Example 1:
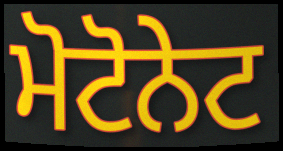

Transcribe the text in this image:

ਮੋਟੋਨੇਟ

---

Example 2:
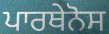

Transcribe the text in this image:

ਪਾਰਥੇਨੋਸ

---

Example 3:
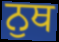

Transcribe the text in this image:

ਨੁਥ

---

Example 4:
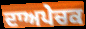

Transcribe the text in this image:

ਦਾਅਪੇਚਕ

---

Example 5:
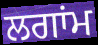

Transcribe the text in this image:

ਲਗਾਂਮ